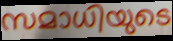
സമാധിയുടെ